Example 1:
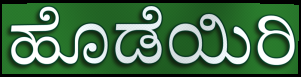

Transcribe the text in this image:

ಹೊಡೆಯಿರಿ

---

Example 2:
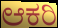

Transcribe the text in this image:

ಆಕರಿ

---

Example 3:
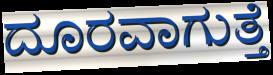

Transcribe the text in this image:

ದೂರವಾಗುತ್ತೆ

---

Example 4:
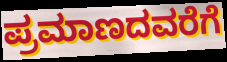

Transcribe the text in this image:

ಪ್ರಮಾಣದವರೆಗೆ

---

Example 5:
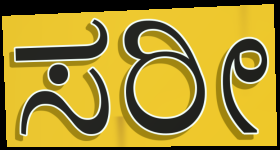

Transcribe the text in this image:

ಸರೀ